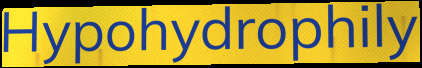
Hypohydrophily